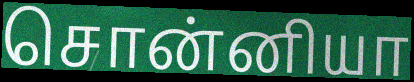
சொன்னியா